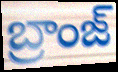
బ్రాంజ్